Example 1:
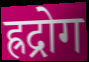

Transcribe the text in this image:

ह्रद्रोग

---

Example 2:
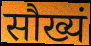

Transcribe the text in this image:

सौख्यं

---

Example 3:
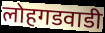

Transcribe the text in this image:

लोहगडवाडी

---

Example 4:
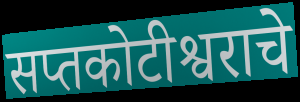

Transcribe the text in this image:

सप्तकोटीश्वराचे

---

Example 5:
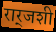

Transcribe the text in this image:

रार्जशी